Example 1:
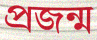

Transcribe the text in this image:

প্রজন্ম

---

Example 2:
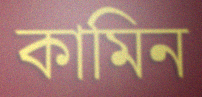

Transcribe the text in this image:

কামিন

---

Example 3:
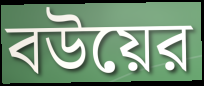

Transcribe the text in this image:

বউয়ের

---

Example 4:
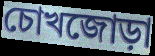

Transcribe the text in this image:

চোখজোড়া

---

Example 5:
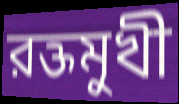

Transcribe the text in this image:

রক্তমুখী